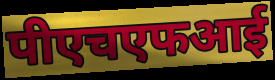
पीएचएफआई